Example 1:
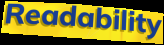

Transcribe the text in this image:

Readability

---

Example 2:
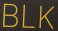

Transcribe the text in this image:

BLK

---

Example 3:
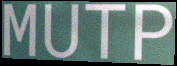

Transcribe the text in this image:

MUTP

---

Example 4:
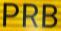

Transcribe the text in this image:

PRB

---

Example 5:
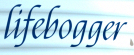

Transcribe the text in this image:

lifebogger